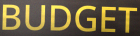
BUDGET